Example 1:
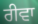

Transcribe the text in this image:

ਰੀਵਾ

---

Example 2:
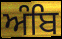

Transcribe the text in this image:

ਅੰਬਿ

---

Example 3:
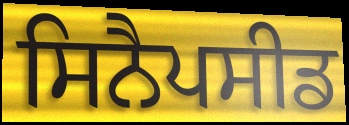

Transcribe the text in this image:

ਸਿਨੈਪਸੀਡ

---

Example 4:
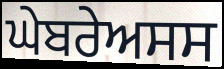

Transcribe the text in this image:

ਘੇਬਰੇਅਸਸ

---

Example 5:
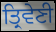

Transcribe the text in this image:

ਤ੍ਰਿਵੇਣੀ